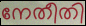
നേതീതി